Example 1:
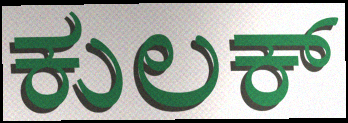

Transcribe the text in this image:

ಕುಲಕ್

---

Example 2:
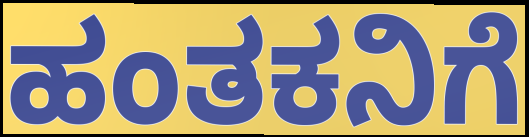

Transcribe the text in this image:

ಹಂತಕನಿಗೆ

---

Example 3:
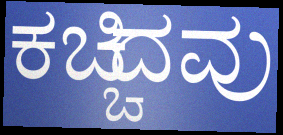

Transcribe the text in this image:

ಕಚ್ಚಿದವು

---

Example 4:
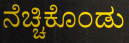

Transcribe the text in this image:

ನೆಚ್ಚಿಕೊಂಡು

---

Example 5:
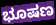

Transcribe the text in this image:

ಭೂಷಣ